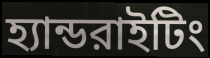
হ্যান্ডরাইটিং